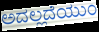
ಅದಲ್ಲದೆಯುಂ